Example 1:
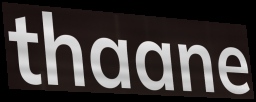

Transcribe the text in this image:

thaane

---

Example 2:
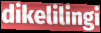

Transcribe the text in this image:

dikelilingi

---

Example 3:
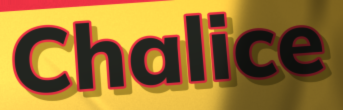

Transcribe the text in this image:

Chalice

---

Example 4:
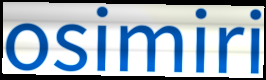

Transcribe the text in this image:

osimiri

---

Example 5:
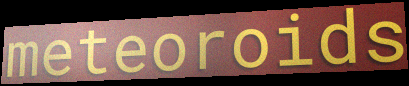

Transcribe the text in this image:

meteoroids